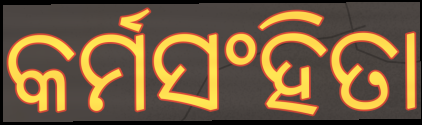
କର୍ମସଂହିତା